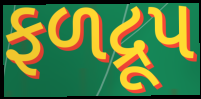
ફળદ્રૂપ